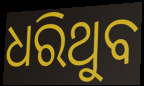
ଧରିଥୁବ